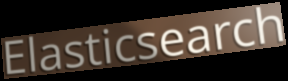
Elasticsearch